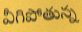
వీగిపోతున్న